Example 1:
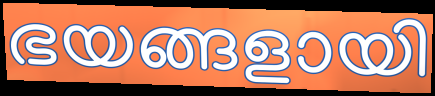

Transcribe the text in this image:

ഭയങ്ങളായി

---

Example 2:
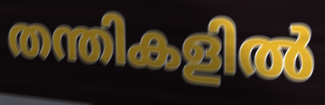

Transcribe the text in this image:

തന്തികളിൽ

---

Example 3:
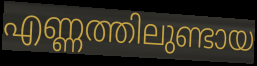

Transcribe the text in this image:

എണ്ണത്തിലുണ്ടായ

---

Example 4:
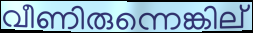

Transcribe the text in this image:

വീണിരുന്നെങ്കില്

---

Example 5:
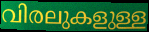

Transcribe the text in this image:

വിരലുകളുള്ള